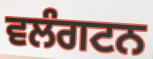
ਵਲੰਗਟਨ